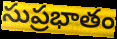
సుప్రభాతం